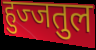
हुज्जतुल